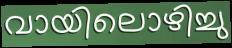
വായിലൊഴിച്ചു